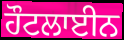
ਹੌਟਲਾਈਨ